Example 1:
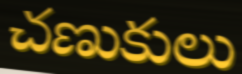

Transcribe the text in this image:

చణుకులు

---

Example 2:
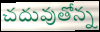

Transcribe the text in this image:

చదువుతోన్న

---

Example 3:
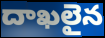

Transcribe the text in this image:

దాఖలైన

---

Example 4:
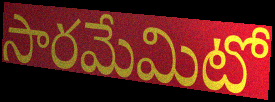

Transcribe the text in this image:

సారమేమిటో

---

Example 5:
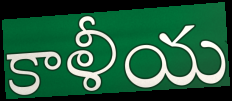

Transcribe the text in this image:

కాళీయ